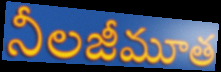
నీలజీమూత